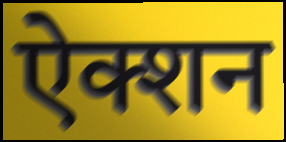
ऐक्‍शन